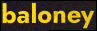
baloney